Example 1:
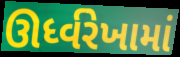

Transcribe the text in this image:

ઊર્ધ્વરેખામાં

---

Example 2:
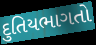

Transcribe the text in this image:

દુતિયભાગતો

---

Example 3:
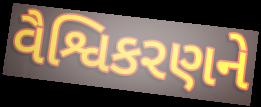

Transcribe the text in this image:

વૈશ્વિકરણને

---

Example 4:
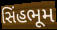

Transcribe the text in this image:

સિંહભૂમ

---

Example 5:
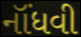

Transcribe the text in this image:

નૉંધવી